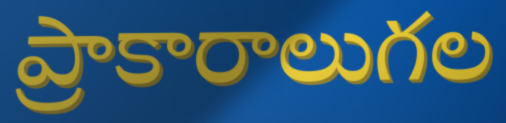
ప్రాకారాలుగల